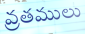
వ్రతములు